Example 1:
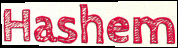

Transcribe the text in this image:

Hashem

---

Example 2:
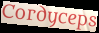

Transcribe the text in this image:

Cordyceps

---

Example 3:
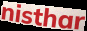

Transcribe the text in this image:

nisthar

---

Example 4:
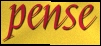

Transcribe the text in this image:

pense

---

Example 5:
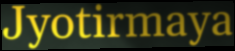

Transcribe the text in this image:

Jyotirmaya